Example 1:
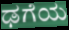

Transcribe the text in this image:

ಢಗೆಯ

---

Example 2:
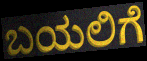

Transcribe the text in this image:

ಬಯಲಿಗೆ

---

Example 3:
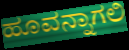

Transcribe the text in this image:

ಹೂವನ್ನಾಗಲಿ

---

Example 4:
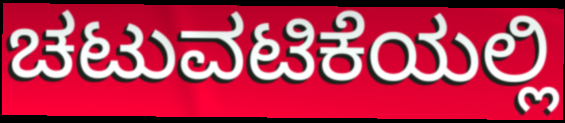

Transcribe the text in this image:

ಚಟುವಟಿಕೆಯಲ್ಲಿ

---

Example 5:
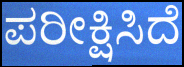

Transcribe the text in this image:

ಪರೀಕ್ಷಿಸಿದೆ